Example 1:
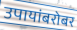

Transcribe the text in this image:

उपायांबरोबर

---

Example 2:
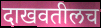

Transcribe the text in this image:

दाखवतीलच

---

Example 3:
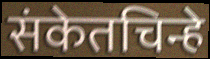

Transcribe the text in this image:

संकेतचिन्हे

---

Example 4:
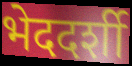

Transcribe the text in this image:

भेददर्शी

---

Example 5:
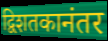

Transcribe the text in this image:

द्विशतकानंतर